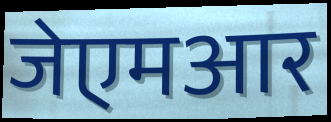
जेएमआर